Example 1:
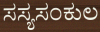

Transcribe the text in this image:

ಸಸ್ಯಸಂಕುಲ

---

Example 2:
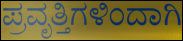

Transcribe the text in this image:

ಪ್ರವೃತ್ತಿಗಳಿಂದಾಗಿ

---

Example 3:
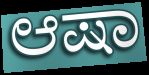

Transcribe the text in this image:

ಆಷಾ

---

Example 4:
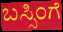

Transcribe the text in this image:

ಬಸ್ಸಿಂಗೆ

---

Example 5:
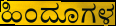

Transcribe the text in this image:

ಹಿಂದೂಗಳ